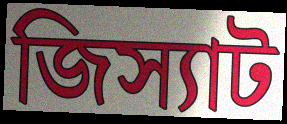
জিস্যাট